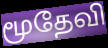
மூதேவி